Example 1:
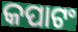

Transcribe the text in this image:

କପାଟଂ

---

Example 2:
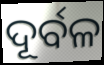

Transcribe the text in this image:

ଦୂର୍ବଳ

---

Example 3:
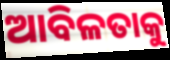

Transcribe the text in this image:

ଆବିଳତାକୁ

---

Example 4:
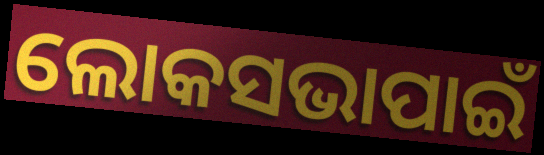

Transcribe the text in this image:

ଲୋକସଭାପାଇଁ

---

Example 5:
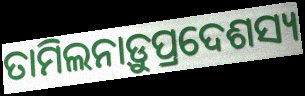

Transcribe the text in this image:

ତାମିଲନାଡ଼ୁପ୍ରଦେଶସ୍ୟ